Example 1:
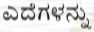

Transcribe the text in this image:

ಎದೆಗಳನ್ನು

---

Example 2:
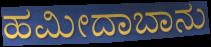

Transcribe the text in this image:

ಹಮೀದಾಬಾನು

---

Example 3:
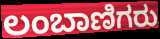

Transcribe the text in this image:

ಲಂಬಾಣಿಗರು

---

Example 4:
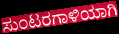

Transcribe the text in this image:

ಸುಂಟರಗಾಳಿಯಾಗಿ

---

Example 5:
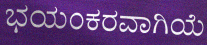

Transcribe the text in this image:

ಭಯಂಕರವಾಗಿಯೆ